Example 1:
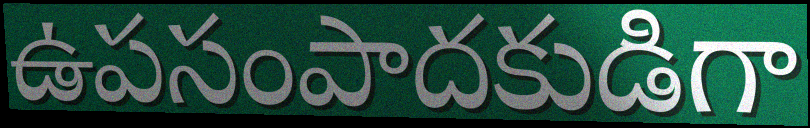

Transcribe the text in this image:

ఉపసంపాదకుడిగా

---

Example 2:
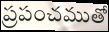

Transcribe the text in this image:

ప్రపంచముతో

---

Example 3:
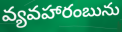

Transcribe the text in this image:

వ్యవహారంబును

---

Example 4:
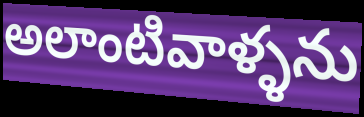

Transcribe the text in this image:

అలాంటివాళ్ళను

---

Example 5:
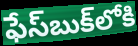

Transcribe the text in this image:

ఫేస్‌బుక్‌లోకి